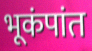
भूकंपांत